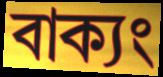
বাক্যং